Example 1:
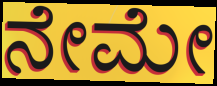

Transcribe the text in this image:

ನೇಮೇ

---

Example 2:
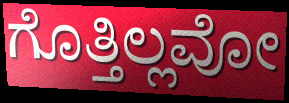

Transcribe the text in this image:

ಗೊತ್ತಿಲ್ಲವೋ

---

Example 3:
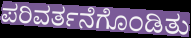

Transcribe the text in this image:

ಪರಿವರ್ತನೆಗೊಂಡಿತು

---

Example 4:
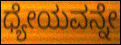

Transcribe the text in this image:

ಧ್ಯೇಯವನ್ನೇ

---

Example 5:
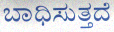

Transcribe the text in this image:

ಬಾಧಿಸುತ್ತದೆ